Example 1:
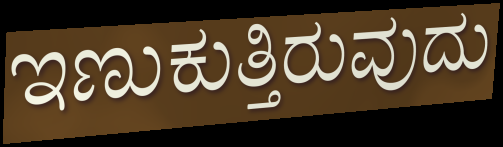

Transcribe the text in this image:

ಇಣುಕುತ್ತಿರುವುದು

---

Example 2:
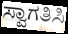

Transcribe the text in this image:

ಸ್ವಾಗತಿಸಿ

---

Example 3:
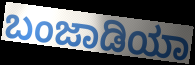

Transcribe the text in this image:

ಬಂಜಾಡಿಯಾ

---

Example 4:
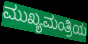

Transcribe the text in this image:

ಮುಖ್ಯಮಂತ್ರಿಯ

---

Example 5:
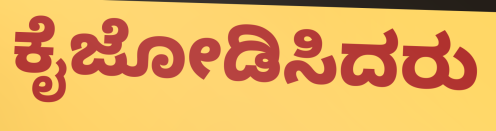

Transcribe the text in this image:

ಕೈಜೋಡಿಸಿದರು